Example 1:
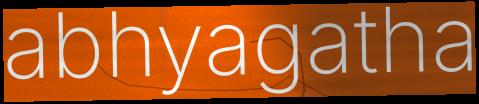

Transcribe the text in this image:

abhyagatha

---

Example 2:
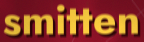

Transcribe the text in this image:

smitten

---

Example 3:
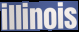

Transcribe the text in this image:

illinois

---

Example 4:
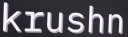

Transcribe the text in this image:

krushn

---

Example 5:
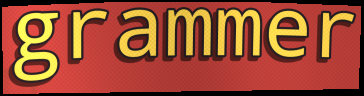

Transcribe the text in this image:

grammer